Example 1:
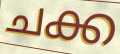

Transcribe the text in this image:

ചക്ക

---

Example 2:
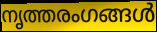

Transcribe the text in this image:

നൃത്തരംഗങ്ങൾ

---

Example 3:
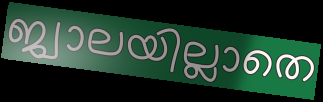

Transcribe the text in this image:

ജ്വാലയില്ലാതെ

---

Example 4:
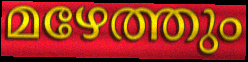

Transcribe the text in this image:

മഴേത്തും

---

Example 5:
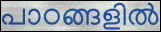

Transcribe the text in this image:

പാഠങ്ങളിൽ